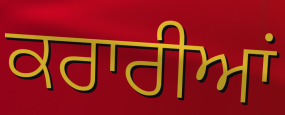
ਕਰਾਰੀਆਂ